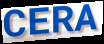
CERA